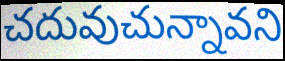
చదువుచున్నావని